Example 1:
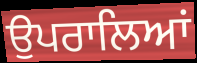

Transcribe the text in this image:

ਉਪਰਾਲਿਆਂ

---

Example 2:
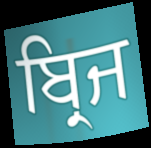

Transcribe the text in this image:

ਬ੍ਰਿਜ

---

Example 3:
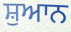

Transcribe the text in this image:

ਸ਼ੁਆਨ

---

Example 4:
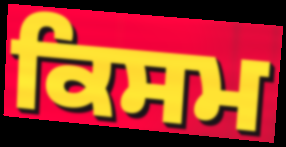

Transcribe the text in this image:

ਕਿਸਮ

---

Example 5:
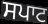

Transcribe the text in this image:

ਸਪਾਟ